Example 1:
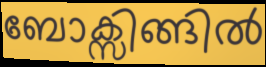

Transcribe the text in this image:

ബോക്സിങ്ങിൽ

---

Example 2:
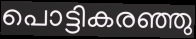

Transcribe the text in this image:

പൊട്ടികരഞ്ഞു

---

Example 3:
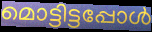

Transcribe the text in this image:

മൊട്ടിട്ടപ്പോൾ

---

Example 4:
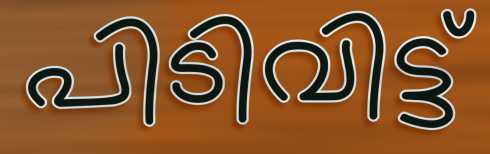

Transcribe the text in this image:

പിടിവിട്ട്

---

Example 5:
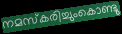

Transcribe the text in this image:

നമസ്കരിച്ചുംകൊണ്ടു